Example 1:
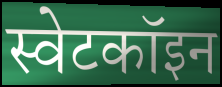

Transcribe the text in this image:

स्वेटकॉइन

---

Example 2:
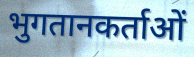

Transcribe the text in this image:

भुगतानकर्ताओं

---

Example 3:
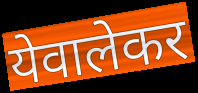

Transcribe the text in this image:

येवालेकर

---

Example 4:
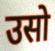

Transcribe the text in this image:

उसो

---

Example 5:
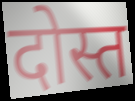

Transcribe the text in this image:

दोस्त